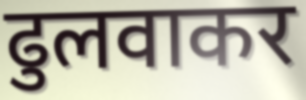
ढुलवाकर